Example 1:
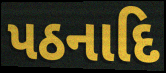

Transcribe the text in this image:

પઠનાદિ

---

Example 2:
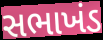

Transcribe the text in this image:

સભાખંડ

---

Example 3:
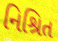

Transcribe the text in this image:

નિશ્રિત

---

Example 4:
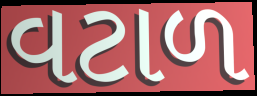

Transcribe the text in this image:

વટાળ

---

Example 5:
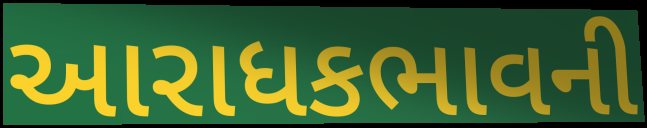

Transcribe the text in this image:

આરાધકભાવની